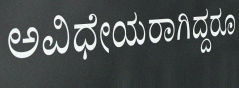
ಅವಿಧೇಯರಾಗಿದ್ದರೂ